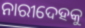
ନାରୀଦେହକୁ